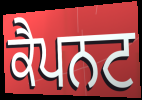
ਕੈਪਨਟ